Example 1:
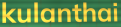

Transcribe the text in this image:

kulanthai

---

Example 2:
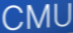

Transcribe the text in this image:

CMU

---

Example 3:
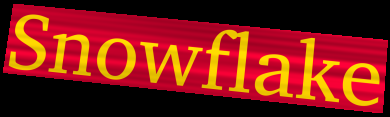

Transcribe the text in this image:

Snowflake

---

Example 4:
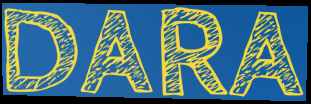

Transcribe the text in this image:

DARA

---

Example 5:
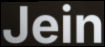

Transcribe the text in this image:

Jein